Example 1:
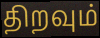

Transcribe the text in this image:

திறவும்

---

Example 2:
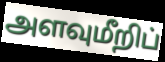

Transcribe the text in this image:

அளவுமீறிப்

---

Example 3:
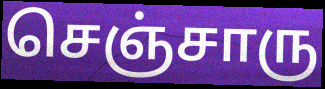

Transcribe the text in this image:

செஞ்சாரு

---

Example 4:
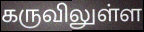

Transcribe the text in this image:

கருவிலுள்ள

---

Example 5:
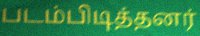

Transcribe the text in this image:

படம்பிடித்தனர்